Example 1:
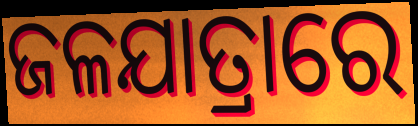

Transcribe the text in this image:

ଜଳଯାତ୍ରାରେ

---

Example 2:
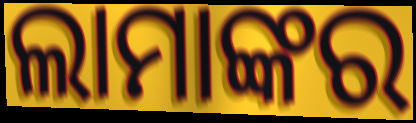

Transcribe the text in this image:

ଲାମାଙ୍କର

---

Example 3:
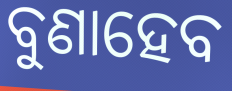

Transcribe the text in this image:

ବୁଣାହେବ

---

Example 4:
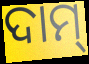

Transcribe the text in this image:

ଦାମ୍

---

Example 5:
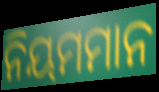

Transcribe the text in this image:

ନିୟମମାନ